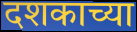
दशकाच्या